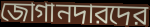
জোগানদারদের